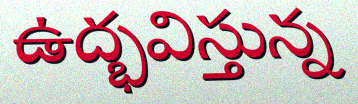
ఉద్భవిస్తున్న